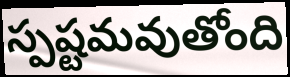
స్పష్టమవుతోంది